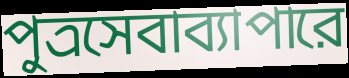
পুত্রসেবাব্যাপারে